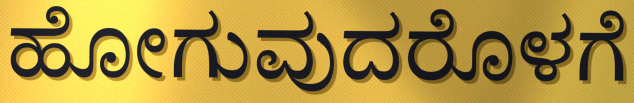
ಹೋಗುವುದರೊಳಗೆ